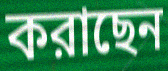
করাছেন